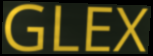
GLEX